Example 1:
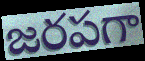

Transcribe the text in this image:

జరపగా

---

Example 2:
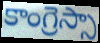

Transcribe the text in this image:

కాంగ్రెస్సా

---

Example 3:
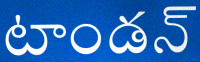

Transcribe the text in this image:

టాండన్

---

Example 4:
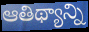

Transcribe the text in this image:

ఆతిథ్యాన్ని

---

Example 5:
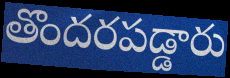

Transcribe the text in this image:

తొందరపడ్డారు